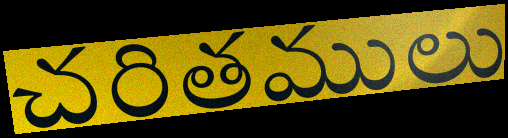
చరితములు